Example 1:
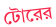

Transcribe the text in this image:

টোরের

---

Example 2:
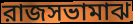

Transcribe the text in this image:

রাজসভামাঝ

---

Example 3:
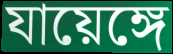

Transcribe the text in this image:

যায়েঙ্গে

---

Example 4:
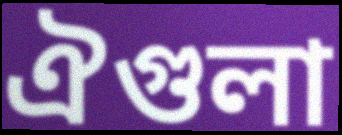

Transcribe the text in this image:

ঐগুলা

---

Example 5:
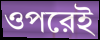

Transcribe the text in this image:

ওপরেই